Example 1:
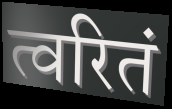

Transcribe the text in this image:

त्वरितं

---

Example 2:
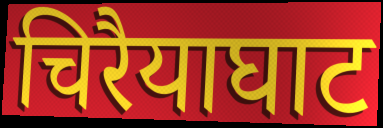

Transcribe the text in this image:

चिरैयाघाट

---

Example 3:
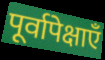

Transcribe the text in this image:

पूर्वापेक्षाएँ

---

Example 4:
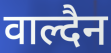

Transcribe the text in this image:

वाल्दैन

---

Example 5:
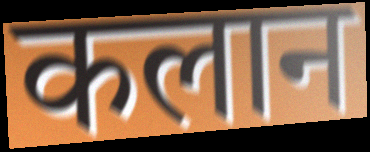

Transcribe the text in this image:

कलान